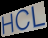
HCL